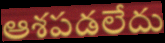
ఆశపడలేదు